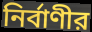
নির্বাণীর